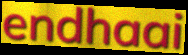
endhaai